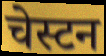
चेस्टन